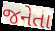
જનેતા